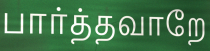
பார்த்தவாறே